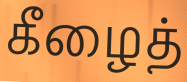
கீழைத்